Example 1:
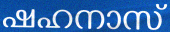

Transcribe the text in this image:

ഷഹനാസ്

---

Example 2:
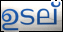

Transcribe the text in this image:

ഉടല്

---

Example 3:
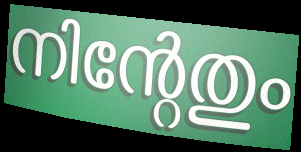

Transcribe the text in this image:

നിന്റേതും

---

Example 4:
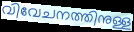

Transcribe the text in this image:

വിവേചനത്തിനുള്ള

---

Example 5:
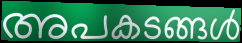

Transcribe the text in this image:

അപകടങ്ങൾ